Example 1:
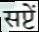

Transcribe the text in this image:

सप्टें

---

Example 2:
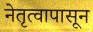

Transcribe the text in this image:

नेतृत्वापासून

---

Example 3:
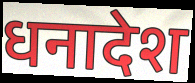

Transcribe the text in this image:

धनादेश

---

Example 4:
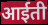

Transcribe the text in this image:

आईती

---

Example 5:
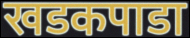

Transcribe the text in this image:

खडकपाडा